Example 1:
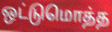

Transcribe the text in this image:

ஒட்டுமொத்த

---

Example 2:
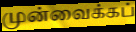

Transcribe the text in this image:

முன்வைக்கப்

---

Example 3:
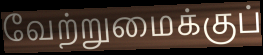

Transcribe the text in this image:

வேற்றுமைக்குப்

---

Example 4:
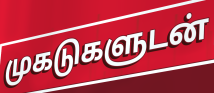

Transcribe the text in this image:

முகடுகளுடன்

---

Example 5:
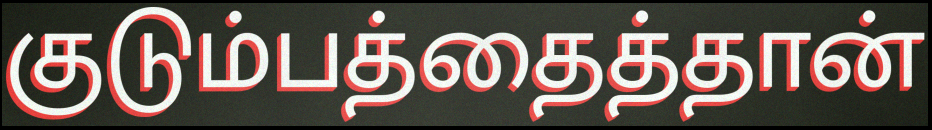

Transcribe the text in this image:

குடும்பத்தைத்தான்